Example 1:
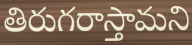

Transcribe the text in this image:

తిరుగరాస్తామని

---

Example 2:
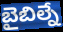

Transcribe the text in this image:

బైబిల్నే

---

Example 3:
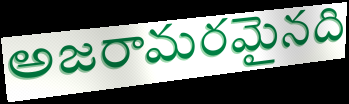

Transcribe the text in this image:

అజరామరమైనది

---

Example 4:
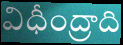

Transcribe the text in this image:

విధీంద్రాది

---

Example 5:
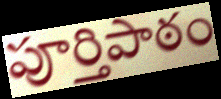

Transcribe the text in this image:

పూర్తిపాఠం